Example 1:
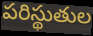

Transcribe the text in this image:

పరిస్థుతుల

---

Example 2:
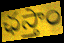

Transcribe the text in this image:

ఛస్తాం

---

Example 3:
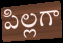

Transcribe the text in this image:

పిల్లగా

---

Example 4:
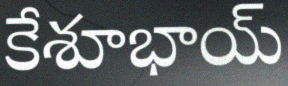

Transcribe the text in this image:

కేశూభాయ్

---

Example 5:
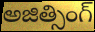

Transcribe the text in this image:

అజిత్సింగ్